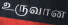
உருவான